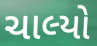
ચાલ્યો